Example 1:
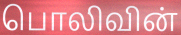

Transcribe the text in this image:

பொலிவின்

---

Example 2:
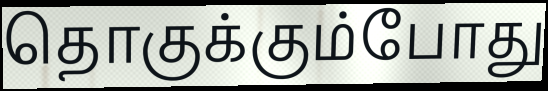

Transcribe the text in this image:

தொகுக்கும்போது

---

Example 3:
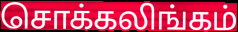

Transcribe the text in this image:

சொக்கலிங்கம்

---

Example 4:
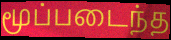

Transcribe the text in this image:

மூப்படைந்த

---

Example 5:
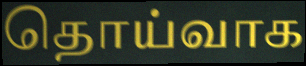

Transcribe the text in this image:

தொய்வாக